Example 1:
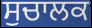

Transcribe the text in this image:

ਸੁਚਾਲਕ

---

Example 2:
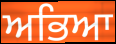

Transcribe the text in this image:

ਅਭਿਆ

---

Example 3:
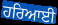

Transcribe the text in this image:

ਹਰਿਆਈ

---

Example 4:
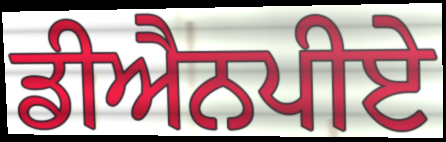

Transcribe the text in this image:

ਡੀਐਨਪੀਏ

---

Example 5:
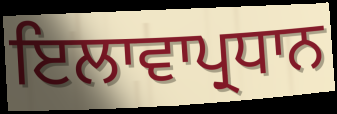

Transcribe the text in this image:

ਇਲਾਵਾਪ੍ਰਧਾਨ